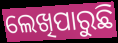
ଲେଖିପାରୁଛି